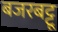
बजरबट्टू